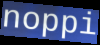
noppi